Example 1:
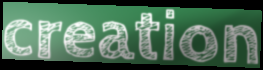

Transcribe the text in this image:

creation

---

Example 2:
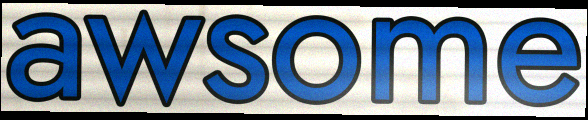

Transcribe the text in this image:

awsome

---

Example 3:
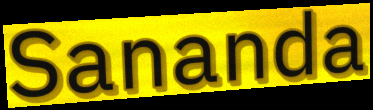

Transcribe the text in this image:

Sananda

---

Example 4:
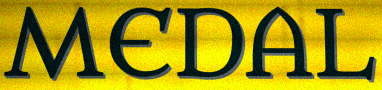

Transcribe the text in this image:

MEDAL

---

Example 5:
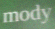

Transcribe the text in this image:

mody